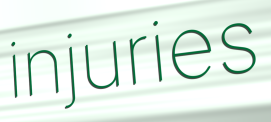
injuries